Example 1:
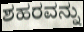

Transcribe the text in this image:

ಶಹರವನ್ನು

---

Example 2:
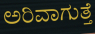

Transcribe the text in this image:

ಅರಿವಾಗುತ್ತೆ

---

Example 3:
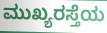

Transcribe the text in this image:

ಮುಖ್ಯರಸ್ತೆಯ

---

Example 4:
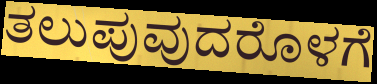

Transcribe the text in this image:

ತಲುಪುವುದರೊಳಗೆ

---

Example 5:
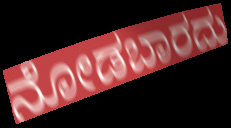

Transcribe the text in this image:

ನೋಡಬಾರದು